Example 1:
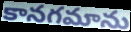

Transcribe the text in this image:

కానగమాను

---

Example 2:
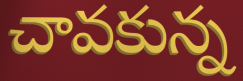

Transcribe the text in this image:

చావకున్న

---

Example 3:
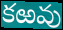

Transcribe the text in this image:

కఱవు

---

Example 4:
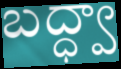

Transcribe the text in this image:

బద్ధ్వా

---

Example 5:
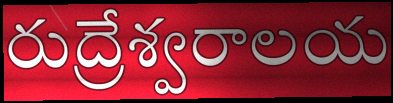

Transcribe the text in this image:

రుద్రేశ్వరాలయ